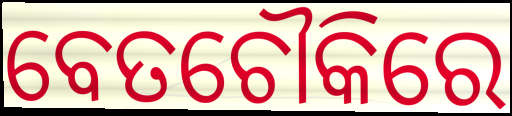
ବେତଚୌକିରେ